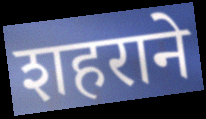
शहराने